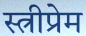
स्त्रीप्रेम